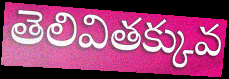
తెలివితక్కువ